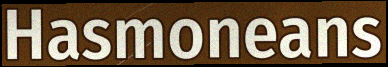
Hasmoneans